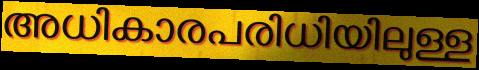
അധികാരപരിധിയിലുള്ള